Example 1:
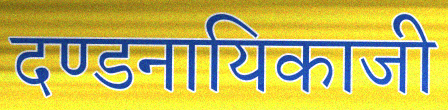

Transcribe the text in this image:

दण्डनायिकाजी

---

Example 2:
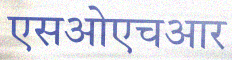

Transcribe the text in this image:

एसओएचआर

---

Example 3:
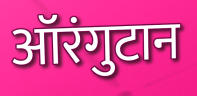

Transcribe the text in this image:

ऑरंगुटान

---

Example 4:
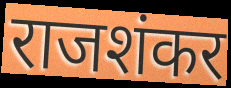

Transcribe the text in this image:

राजशंकर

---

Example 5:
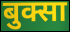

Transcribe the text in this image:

बुक्सा